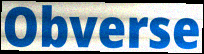
Obverse